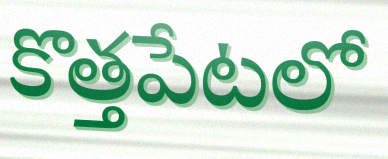
కొత్తపేటలో